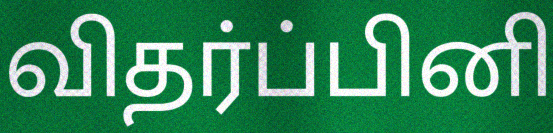
விதர்ப்பினி